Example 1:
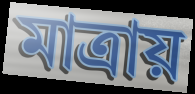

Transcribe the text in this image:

মাত্ৰায়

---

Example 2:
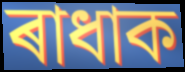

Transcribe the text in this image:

ৰাধাক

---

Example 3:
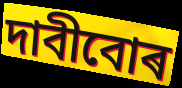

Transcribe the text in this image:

দাবীবোৰ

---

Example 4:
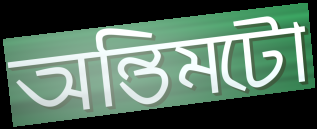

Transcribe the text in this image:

অন্তিমটো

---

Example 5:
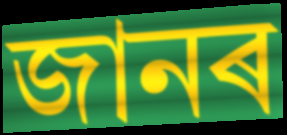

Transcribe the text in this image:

জানৰ